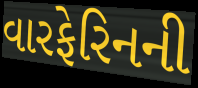
વારફેરિનની